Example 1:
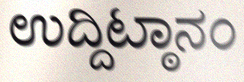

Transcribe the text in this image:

ಉದ್ದಿಟ್ಠಾನಂ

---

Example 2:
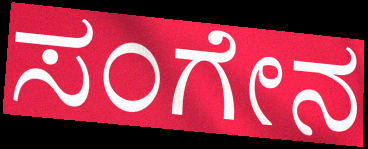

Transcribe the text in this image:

ಸಂಗೇನ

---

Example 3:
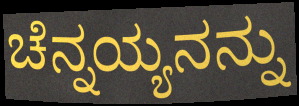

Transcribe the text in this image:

ಚೆನ್ನಯ್ಯನನ್ನು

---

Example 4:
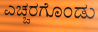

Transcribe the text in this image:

ಎಚ್ಚರಗೊಂಡು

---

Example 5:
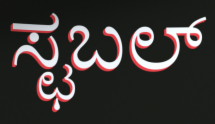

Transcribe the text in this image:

ಸ್ಟಬಲ್